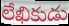
లేఖికుడు